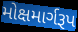
મોક્ષમાર્ગરૂપ